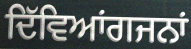
ਦਿੱਵਿਆਂਗਜਨਾਂ